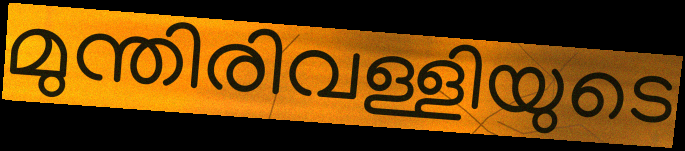
മുന്തിരിവള്ളിയുടെ